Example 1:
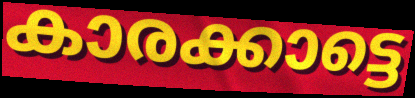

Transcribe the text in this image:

കാരക്കാട്ടെ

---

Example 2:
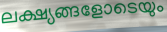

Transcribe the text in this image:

ലക്ഷ്യങ്ങളോടെയും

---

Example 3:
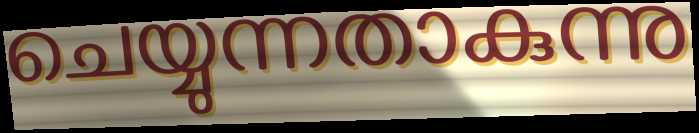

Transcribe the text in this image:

ചെയ്യുന്നതാകുന്നു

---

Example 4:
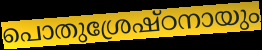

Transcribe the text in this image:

പൊതുശ്രേഷ്ഠനായും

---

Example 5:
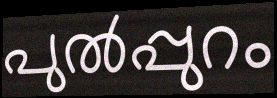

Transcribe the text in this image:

പുൽപ്പുറം